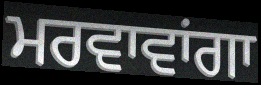
ਮਰਵਾਵਾਂਗਾ